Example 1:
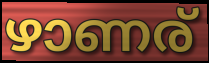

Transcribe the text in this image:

ഴാണര്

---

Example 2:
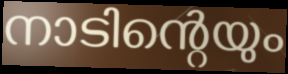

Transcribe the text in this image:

നാടിന്റെയും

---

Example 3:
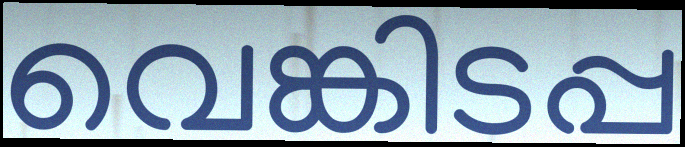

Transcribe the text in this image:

വെങ്കിടപ്പ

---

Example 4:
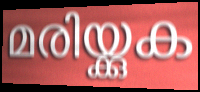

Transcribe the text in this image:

മരിയ്ക്കുക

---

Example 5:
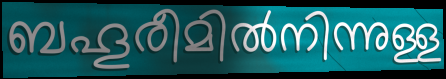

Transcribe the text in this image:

ബഹൂരീമിൽനിന്നുള്ള